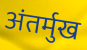
अंतर्मुख